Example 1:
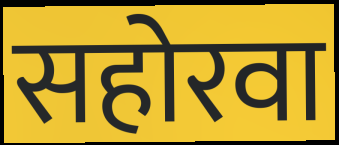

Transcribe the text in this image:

सहोरवा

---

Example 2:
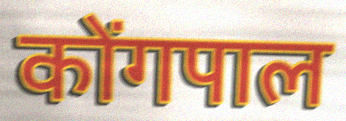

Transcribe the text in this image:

कोंगपाल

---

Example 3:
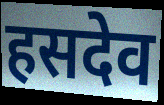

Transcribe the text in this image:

हसदेव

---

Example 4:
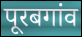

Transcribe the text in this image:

पूरबगांव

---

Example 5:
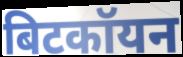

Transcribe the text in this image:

बिटकॉयन